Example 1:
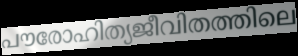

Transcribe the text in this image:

പൗരോഹിത്യജീവിതത്തിലെ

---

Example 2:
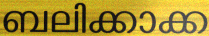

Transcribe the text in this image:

ബലിക്കാക്ക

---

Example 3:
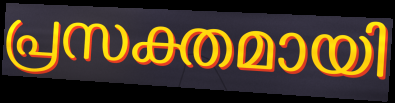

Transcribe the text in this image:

പ്രസക്തമായി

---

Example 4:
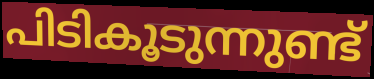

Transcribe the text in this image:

പിടികൂടുന്നുണ്ട്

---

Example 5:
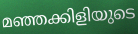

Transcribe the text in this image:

മഞ്ഞക്കിളിയുടെ